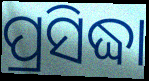
ପ୍ରସିଦ୍ଧା